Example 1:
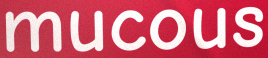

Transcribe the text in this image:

mucous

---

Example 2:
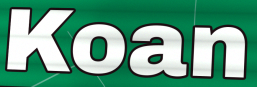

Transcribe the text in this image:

Koan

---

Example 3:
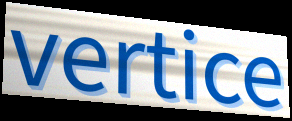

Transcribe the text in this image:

vertice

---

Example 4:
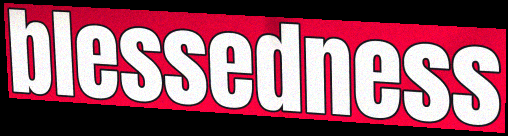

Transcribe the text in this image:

blessedness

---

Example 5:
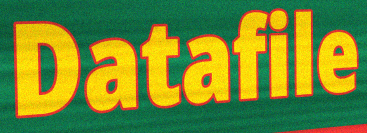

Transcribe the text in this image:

Datafile